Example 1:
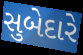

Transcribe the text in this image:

સુબેદારે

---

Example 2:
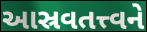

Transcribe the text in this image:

આસ્રવતત્ત્વને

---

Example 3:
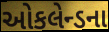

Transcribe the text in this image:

ઓકલેન્ડના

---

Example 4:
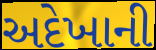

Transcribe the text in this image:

અદેખાની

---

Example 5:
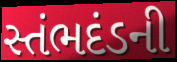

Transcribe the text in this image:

સ્તંભદંડની